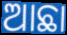
ଆଛା